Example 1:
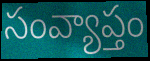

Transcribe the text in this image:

సంవ్యాప్తం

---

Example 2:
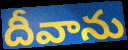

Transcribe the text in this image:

దీవాను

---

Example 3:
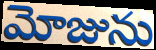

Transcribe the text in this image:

మోజును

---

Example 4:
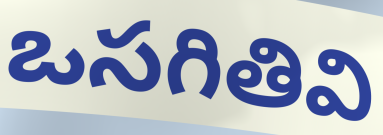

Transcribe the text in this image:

ఒసగితివి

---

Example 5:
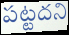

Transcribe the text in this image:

పట్టదని